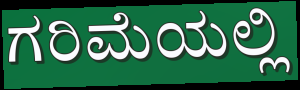
ಗರಿಮೆಯಲ್ಲಿ